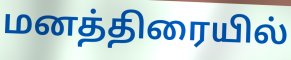
மனத்திரையில்